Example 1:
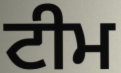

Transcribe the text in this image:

ਟੀਮ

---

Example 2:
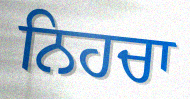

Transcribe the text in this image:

ਨਿਹਚਾ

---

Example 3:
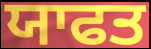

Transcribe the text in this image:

ਯਾਫਤ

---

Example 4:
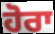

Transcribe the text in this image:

ਹੋਰਾ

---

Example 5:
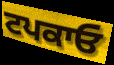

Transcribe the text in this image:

ਟਪਕਾਓ